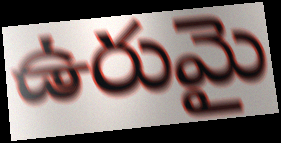
ఉరుమై